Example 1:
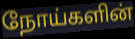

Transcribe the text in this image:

நோய்களின்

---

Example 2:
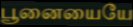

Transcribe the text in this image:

பூனையையே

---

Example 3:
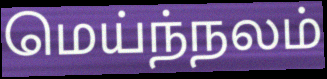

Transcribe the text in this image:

மெய்ந்நலம்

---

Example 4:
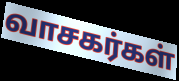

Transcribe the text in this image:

வாசகர்கள்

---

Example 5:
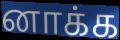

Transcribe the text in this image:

னாக்க